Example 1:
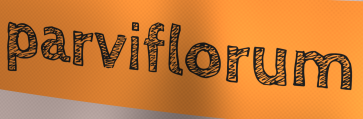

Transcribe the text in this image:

parviflorum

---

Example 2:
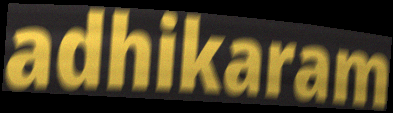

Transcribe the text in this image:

adhikaram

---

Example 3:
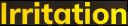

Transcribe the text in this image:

Irritation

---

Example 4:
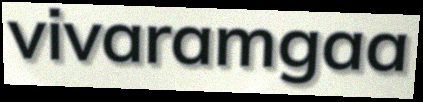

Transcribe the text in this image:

vivaramgaa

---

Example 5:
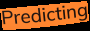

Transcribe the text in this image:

Predicting